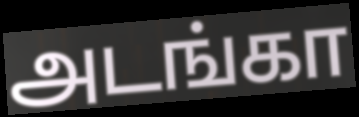
அடங்கா